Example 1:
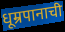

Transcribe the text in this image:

धूम्रपानाची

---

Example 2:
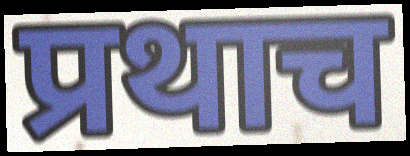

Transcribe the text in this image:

प्रथाच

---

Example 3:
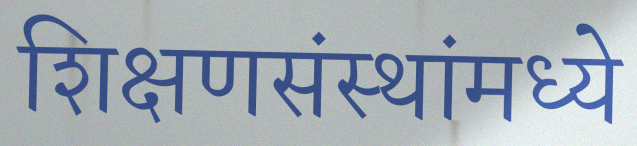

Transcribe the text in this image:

शिक्षणसंस्थांमध्ये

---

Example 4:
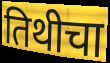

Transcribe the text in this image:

तिथीचा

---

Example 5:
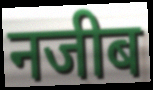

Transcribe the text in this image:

नजीब